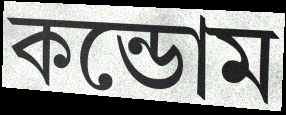
কন্ডোম